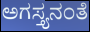
ಅಗಸ್ತ್ಯನಂತೆ